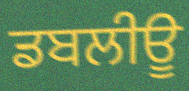
ਡਬਲੀਊ